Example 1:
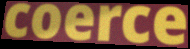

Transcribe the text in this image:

coerce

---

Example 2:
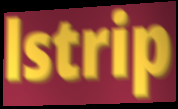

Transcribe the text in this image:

lstrip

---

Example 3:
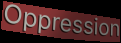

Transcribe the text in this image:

Oppression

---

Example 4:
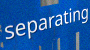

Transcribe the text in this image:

separating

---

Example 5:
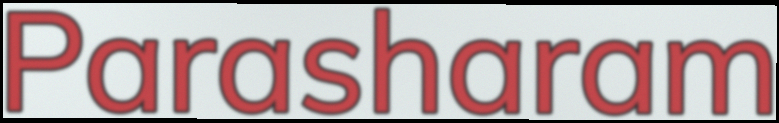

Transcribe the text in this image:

Parasharam